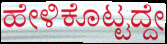
ಹೇಳಿಕೊಟ್ಟದ್ದೇ